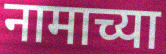
नामाच्या